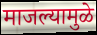
माजल्यामुळे